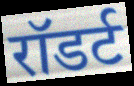
रॉडर्ट